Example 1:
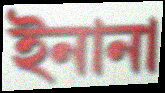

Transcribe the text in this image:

ইনানা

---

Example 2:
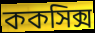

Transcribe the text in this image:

ককসিক্স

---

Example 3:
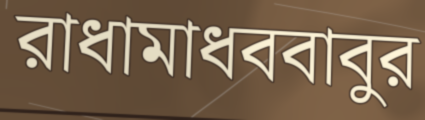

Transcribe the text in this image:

রাধামাধববাবুর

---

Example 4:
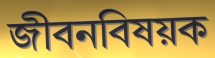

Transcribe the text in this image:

জীবনবিষয়ক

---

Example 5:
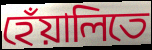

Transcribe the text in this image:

হেঁয়ালিতে